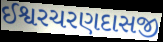
ઈશ્વરચરણદાસજી